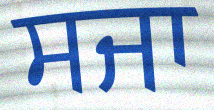
ਸਜਾ